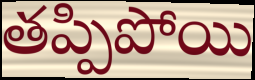
తప్పిపోయి